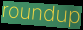
roundup